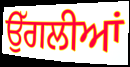
ਉੱਗਲੀਆਂ